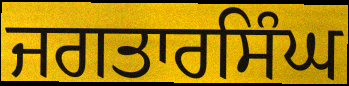
ਜਗਤਾਰਸਿੰਘ